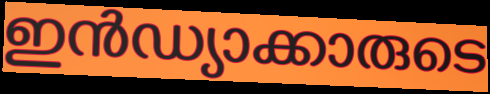
ഇൻഡ്യാക്കാരുടെ